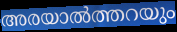
അരയാൽത്തറയും